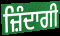
ਜ਼ਿੰਦਾਗੀ